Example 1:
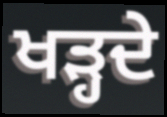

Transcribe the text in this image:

ਖੜ੍ਹਦੇ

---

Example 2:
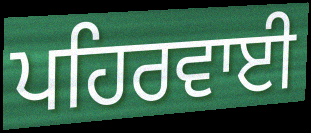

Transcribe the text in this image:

ਪਹਿਰਵਾਈ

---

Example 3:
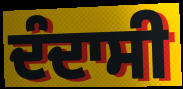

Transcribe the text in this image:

ਦੰਦਾਸੀ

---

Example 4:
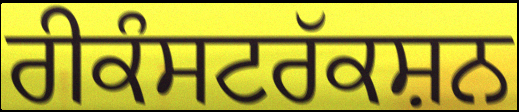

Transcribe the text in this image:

ਰੀਕੰਸਟਰੱਕਸ਼ਨ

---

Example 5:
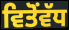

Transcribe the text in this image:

ਵਿਤੋਂਵੱਧ